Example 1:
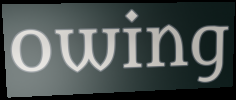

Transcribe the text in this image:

owing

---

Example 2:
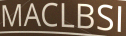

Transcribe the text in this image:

MACLBSI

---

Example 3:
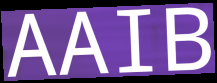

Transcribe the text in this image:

AAIB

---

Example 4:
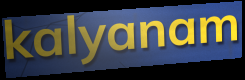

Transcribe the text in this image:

kalyanam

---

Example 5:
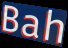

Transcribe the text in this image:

Bah